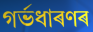
গৰ্ভধাৰণৰ